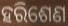
ହରିଶେଣ